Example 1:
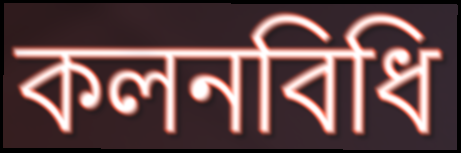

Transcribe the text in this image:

কলনবিধি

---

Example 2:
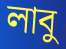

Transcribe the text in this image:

লাবু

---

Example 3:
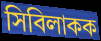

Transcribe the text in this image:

সিবিলাকক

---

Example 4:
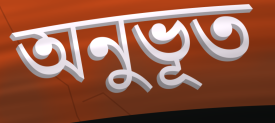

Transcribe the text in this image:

অনুভূত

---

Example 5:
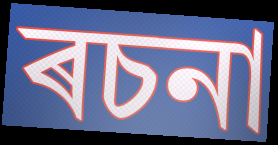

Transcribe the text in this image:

ৰচনা